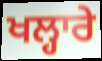
ਖਲ੍ਹਾਰੇ